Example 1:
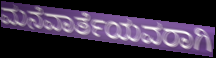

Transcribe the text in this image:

ಮನೆವಾರ್ತೆಯವರಾಗಿ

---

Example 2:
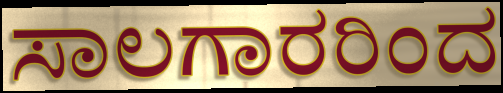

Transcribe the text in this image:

ಸಾಲಗಾರರಿಂದ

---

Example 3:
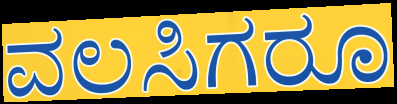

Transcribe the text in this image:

ವಲಸಿಗರೂ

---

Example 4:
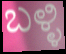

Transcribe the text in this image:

ಬಳ್ಳಿ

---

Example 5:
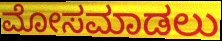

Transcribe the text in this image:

ಮೋಸಮಾಡಲು